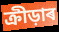
ক্ৰীড়াৰ